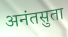
अनंतसुता